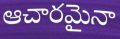
ఆచారమైనా